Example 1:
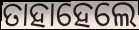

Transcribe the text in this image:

ତାହାହେଲେ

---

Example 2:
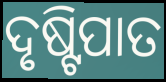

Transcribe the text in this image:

ଦୃଷ୍ଟିପାତ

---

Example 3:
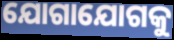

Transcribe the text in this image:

ଯୋଗାଯୋଗକୁ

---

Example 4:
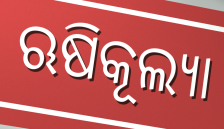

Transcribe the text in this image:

ଋଷିକୂଲ୍ୟା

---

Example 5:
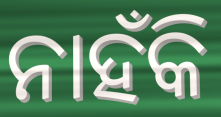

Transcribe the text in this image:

ନାହଁକି